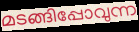
മടങ്ങിപ്പോവുന്ന